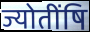
ज्योतींषि